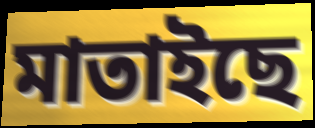
মাতাইছে